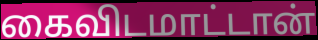
கைவிடமாட்டான்